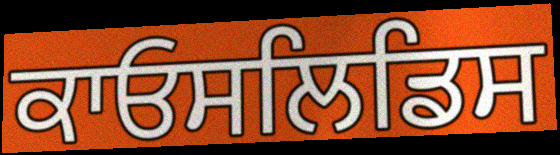
ਕਾਓਸਲਿਡਿਸ